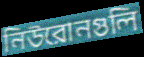
নিউরোনগুলি